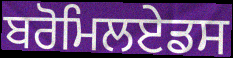
ਬਰੋਮਿਲਏਡਸ